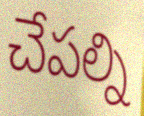
చేపల్ని